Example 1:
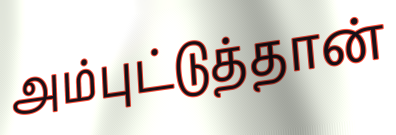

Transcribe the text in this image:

அம்புட்டுத்தான்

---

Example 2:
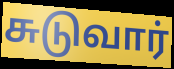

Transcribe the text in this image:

சுடுவார்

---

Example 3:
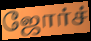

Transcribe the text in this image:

ஜோர்ச்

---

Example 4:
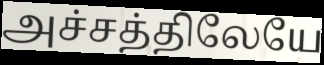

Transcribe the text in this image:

அச்சத்திலேயே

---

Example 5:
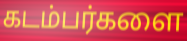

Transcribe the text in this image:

கடம்பர்களை